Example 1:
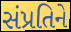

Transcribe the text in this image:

સંપ્રતિને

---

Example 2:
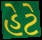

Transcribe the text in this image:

હેટે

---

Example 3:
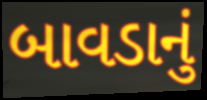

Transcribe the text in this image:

બાવડાનું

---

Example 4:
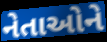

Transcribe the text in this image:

નેતાઓને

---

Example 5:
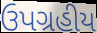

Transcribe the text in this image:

ઉપગ્રહીય